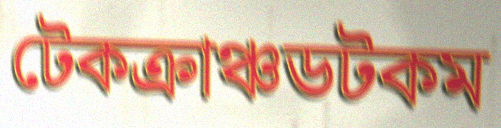
টেকক্রাঞ্চডটকম